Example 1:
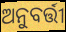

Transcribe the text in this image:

ଅନୁବର୍ତ୍ତୀ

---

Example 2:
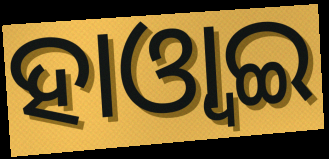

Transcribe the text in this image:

ହାଓ୍ୱାଇ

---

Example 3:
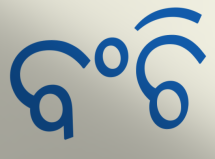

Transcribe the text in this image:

ବଂଚି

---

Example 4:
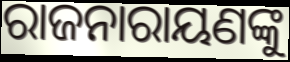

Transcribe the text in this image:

ରାଜନାରାୟଣଙ୍କୁ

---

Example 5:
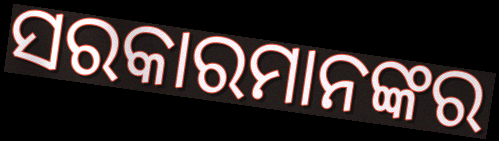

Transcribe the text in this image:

ସରକାରମାନଙ୍କର